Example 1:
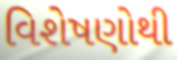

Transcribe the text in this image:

વિશેષણોથી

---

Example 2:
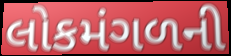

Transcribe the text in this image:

લોકમંગળની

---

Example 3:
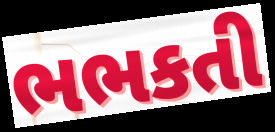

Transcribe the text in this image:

ભભકતી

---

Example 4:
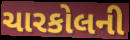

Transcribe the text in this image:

ચારકોલની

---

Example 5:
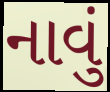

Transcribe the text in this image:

નાવું